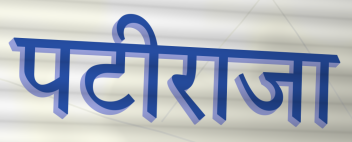
पटीराजा